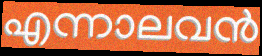
എന്നാലവൻ